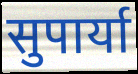
सुपार्या